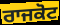
ਰਾਜਕੋਟ